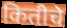
कितीचे